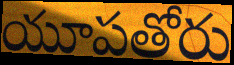
యూపతోరు